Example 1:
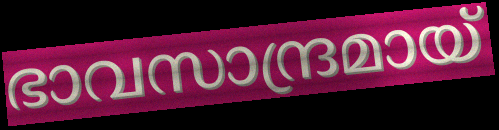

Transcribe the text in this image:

ഭാവസാന്ദ്രമായ്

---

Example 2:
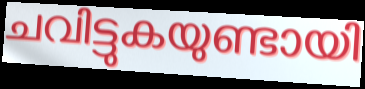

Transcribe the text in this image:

ചവിട്ടുകയുണ്ടായി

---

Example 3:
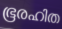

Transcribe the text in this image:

ഭൂരഹിത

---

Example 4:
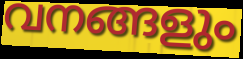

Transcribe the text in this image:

വനങ്ങളും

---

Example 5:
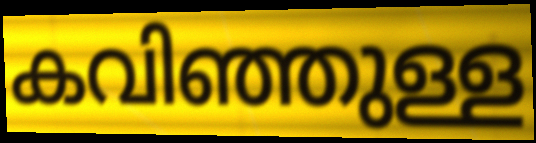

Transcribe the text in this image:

കവിഞ്ഞുള്ള